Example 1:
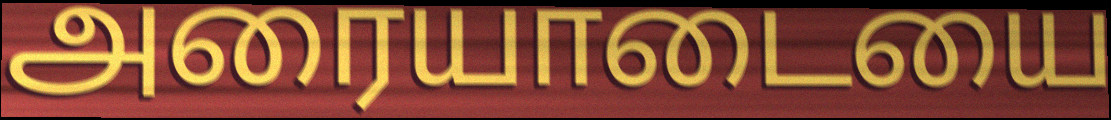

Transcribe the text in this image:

அரையாடையை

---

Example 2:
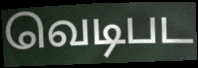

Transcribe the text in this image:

வெடிபட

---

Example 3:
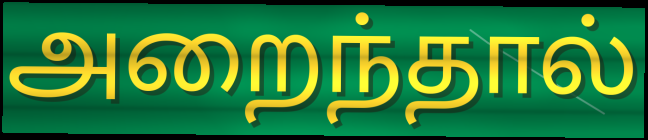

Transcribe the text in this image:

அறைந்தால்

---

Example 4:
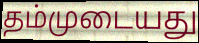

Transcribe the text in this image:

தம்முடையது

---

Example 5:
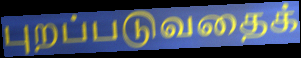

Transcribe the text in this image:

புறப்படுவதைக்